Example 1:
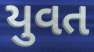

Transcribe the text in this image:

યુવત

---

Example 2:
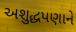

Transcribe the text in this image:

અશુદ્ધપણાને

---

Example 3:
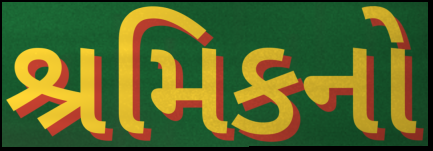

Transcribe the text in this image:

શ્રમિકનો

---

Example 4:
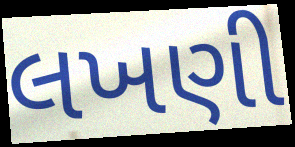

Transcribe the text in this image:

લખણી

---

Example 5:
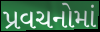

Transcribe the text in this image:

પ્રવચનોમાં